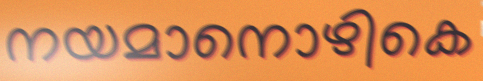
നയമാനൊഴികെ